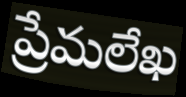
ప్రేమలేఖ